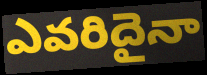
ఎవరిదైనా